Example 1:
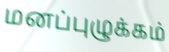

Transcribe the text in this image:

மனப்புழுக்கம்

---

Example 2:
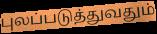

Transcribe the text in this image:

புலப்படுத்துவதும்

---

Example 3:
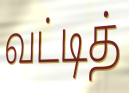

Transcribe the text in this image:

வட்டித்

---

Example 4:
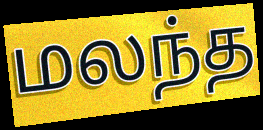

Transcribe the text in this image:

மலந்த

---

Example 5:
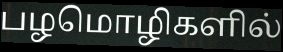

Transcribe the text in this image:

பழமொழிகளில்